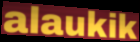
alaukik